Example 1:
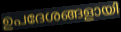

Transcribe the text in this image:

ഉപദേശങ്ങളായി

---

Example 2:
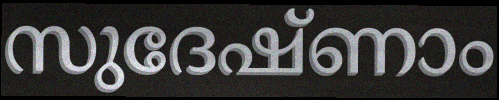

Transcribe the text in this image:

സുദേഷ്ണാം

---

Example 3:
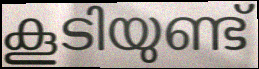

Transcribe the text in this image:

കൂടിയുണ്ട്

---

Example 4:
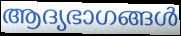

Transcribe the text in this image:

ആദ്യഭാഗങ്ങൾ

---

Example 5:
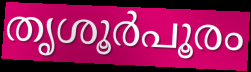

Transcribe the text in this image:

തൃശൂർപൂരം